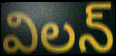
విలన్